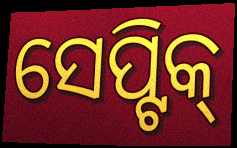
ସେପ୍ଟିକ୍